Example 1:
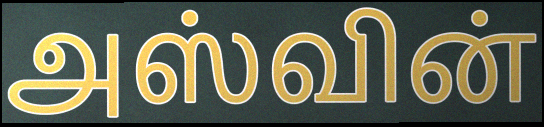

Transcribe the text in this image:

அஸ்வின்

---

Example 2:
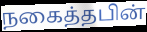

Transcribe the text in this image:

நகைத்தபின்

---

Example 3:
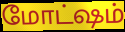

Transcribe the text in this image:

மோட்ஷம்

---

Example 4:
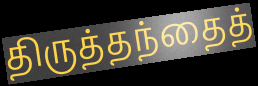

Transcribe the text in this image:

திருத்தந்தைத்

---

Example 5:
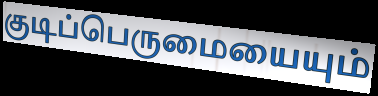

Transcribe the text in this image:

குடிப்பெருமையையும்